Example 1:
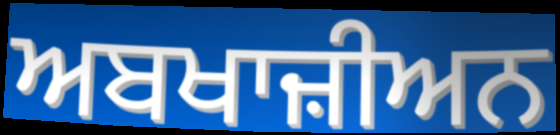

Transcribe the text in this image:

ਅਬਖਾਜ਼ੀਅਨ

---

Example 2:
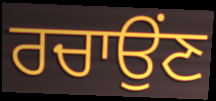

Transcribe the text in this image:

ਰਚਾਉਂਣ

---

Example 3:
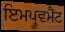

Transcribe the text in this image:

ਇਮਪ੍ਰੂਵਮੈਂਟ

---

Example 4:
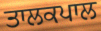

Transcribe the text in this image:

ਤਾਲਕਪਾਲ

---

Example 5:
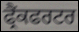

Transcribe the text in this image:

ਫ੍ਰੈਂਕਫਰਟਰ